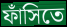
ফাঁসিতে